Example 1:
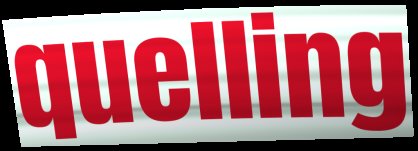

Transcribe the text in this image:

quelling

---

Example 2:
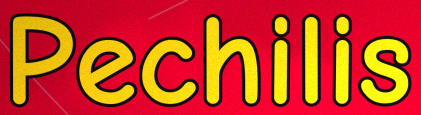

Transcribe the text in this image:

Pechilis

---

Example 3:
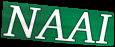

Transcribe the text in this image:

NAAI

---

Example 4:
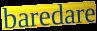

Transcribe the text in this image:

baredare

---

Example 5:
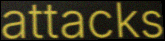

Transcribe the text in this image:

attacks